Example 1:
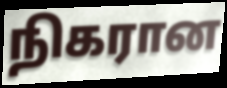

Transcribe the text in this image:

நிகரான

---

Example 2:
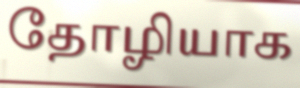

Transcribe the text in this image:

தோழியாக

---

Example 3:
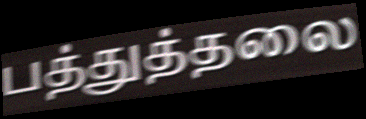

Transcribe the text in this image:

பத்துத்தலை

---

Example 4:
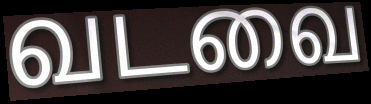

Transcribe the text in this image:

வடவை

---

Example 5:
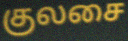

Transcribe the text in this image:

குலசை